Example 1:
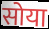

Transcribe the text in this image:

सोया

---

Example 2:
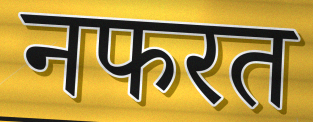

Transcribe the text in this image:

नफरत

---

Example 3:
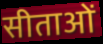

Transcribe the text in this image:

सीताओं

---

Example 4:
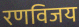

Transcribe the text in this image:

रणविजय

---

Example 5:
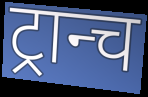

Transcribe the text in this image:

ट्रान्च